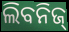
ଲିବନିଜ୍